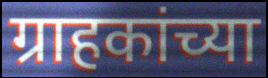
ग्राहकांच्या